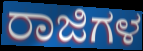
ರಾಜಿಗಳ